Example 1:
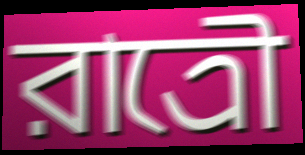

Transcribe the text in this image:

রাত্রৌ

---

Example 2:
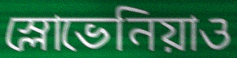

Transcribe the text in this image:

স্লোভেনিয়াও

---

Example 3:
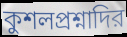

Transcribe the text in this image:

কুশলপ্রশ্নাদির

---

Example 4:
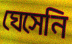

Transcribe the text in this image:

ঘেসেনি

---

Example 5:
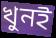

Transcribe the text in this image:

খুনই